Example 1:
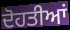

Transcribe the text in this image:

ਦੋਹਤੀਆਂ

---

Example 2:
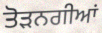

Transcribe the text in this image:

ਤੋੜਨਗੀਆਂ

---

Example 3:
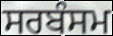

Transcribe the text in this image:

ਸਰਬੰਸਮ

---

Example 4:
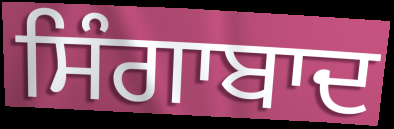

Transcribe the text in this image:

ਸਿੰਗਾਬਾਦ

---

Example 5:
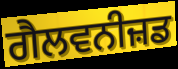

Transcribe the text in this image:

ਗੈਲਵਨੀਜ਼ਡ